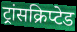
ट्रांसक्रिप्टेड